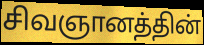
சிவஞானத்தின்